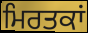
ਮਿਰਤਕਾਂ